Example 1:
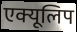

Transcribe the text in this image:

एक्यूलिप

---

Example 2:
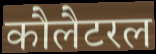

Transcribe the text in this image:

कौलैटरल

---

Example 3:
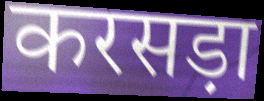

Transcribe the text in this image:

करसड़ा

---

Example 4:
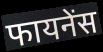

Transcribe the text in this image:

फायनेंस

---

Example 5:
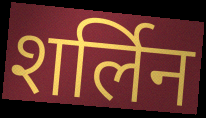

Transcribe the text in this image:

शर्लिन